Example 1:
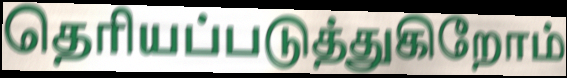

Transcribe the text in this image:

தெரியப்படுத்துகிறோம்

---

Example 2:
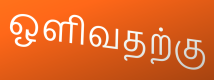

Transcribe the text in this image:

ஒளிவதற்கு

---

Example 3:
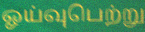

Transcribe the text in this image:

ஓய்வுபெற்று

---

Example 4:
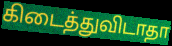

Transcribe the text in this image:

கிடைத்துவிடாதா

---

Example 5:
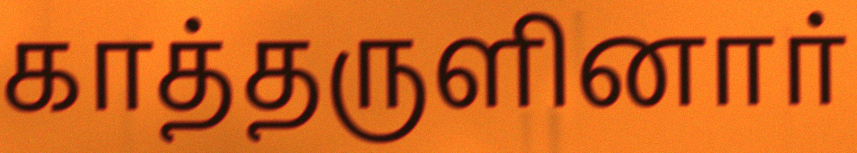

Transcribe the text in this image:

காத்தருளினார்